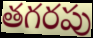
తగరపు